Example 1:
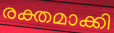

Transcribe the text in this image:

രക്തമാക്കി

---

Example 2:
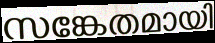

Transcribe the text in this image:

സങ്കേതമായി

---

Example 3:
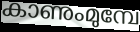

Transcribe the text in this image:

കാണുംമുമ്പേ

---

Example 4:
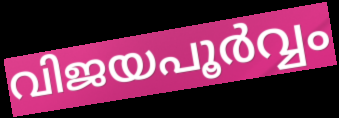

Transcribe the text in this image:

വിജയപൂർവ്വം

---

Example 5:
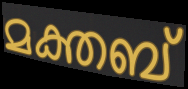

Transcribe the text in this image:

മക്തബ്